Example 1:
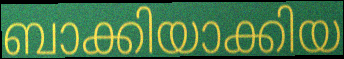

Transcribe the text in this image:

ബാക്കിയാക്കിയ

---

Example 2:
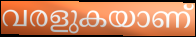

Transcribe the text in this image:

വരളുകയാണ്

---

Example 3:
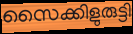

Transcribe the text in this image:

സൈക്കിളുരുട്ടി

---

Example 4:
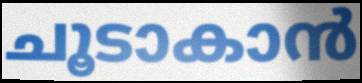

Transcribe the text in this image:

ചൂടാകാൻ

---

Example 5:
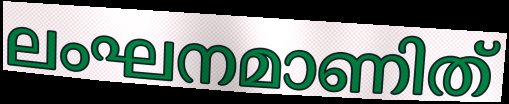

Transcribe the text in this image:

ലംഘനമാണിത്